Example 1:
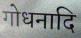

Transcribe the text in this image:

गोधनादि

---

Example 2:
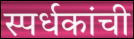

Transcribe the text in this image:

स्पर्धकांची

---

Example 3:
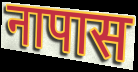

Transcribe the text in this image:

नापास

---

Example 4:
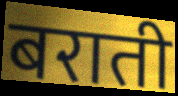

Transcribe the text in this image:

बराती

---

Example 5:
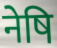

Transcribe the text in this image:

नेषि